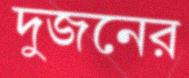
দুজনের